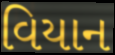
વિયાન